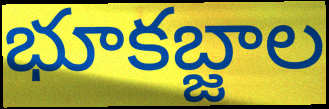
భూకబ్జాల